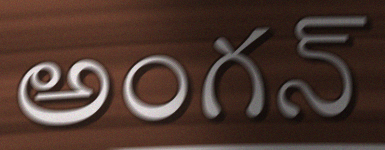
అంగన్